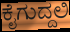
ಕೈಗುದ್ದಲಿ